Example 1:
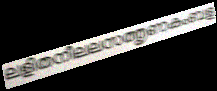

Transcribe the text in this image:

ലളിതനീലലസത്തൃണകംബള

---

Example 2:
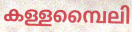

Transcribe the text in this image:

കള്ളമ്പൈലി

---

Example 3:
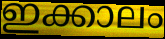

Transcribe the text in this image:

ഇക്കാലം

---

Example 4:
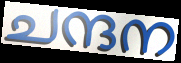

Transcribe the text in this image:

ചന്ദന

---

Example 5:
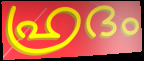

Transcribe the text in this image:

ഹ്രദം